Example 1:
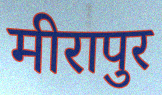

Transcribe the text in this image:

मीरापुर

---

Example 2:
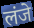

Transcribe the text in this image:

लंजे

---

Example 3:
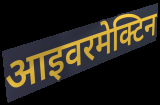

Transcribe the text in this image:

आइवरमेक्टिन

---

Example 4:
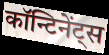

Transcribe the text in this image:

कॉन्टिनेंट्स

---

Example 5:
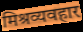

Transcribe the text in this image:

मिश्रव्यवहार